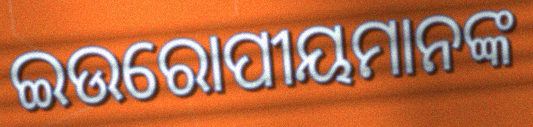
ଇଉରୋପୀୟମାନଙ୍କ